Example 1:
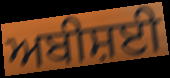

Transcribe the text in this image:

ਅਬੀਸ਼ਈ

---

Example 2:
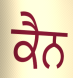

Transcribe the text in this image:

ਕੈਨ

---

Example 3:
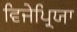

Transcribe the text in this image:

ਵਿਜੇਪ੍ਰਿਯਾ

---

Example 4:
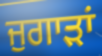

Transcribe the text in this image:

ਜੁਗਾੜਾਂ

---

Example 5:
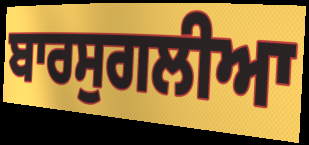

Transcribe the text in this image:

ਬਾਰਸੁਗਲੀਆ